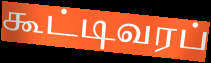
கூட்டிவரப்